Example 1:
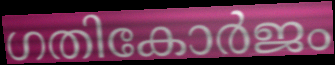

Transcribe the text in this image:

ഗതികോർജം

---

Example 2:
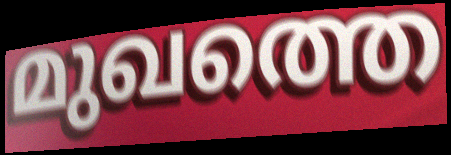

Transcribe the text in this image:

മുഖത്തെ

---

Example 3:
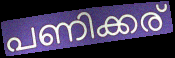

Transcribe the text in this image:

പണിക്കര്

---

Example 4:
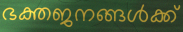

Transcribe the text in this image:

ഭക്തജനങ്ങൾക്ക്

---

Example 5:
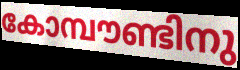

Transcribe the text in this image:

കോമ്പൗണ്ടിനു